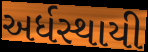
અર્ધસ્થાયી